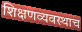
शिक्षणव्यवस्थाच